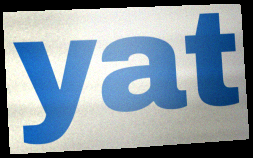
yat